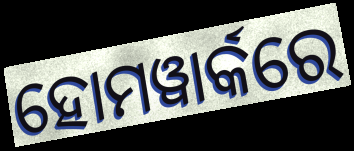
ହୋମୱାର୍କରେ